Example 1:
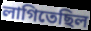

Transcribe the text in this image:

লাগিতেছিল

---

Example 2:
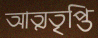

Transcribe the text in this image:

আত্মতৃপ্তি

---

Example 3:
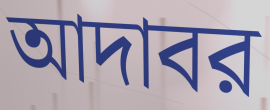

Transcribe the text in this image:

আদাবর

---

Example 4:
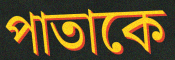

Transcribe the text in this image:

পাতাকে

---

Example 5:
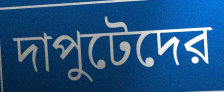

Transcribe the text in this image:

দাপুটেদের